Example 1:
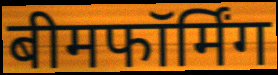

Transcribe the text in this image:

बीमफॉर्मिंग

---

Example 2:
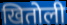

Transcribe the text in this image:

खितोली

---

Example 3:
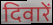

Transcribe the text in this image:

दिवारें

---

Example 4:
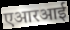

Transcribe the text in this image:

एआरआई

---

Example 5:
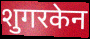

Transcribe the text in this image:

शुगरकेन